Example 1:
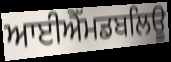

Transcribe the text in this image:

ਆਈਐੱਮਡਬਲਿਊ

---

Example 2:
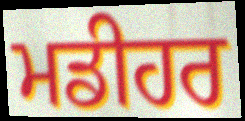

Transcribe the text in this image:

ਮਡੀਹਰ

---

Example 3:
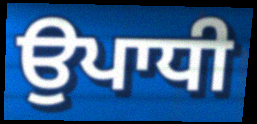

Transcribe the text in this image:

ਉਪਾਧੀ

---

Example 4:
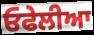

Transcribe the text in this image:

ਓਫੇਲੀਆ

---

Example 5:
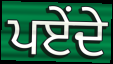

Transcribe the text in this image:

ਪਏਂਦੇ